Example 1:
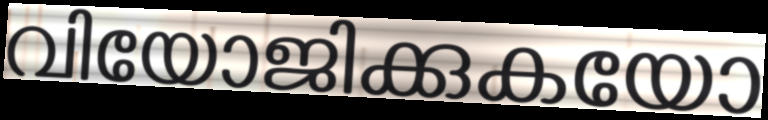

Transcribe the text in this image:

വിയോജിക്കുകയോ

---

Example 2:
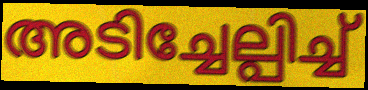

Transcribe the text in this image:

അടിച്ചേല്പിച്ച്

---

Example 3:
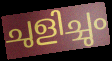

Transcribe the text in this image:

ചുളിച്ചും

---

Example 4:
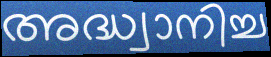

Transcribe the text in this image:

അദ്ധ്വാനിച്ച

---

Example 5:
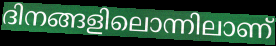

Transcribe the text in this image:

ദിനങ്ങളിലൊന്നിലാണ്